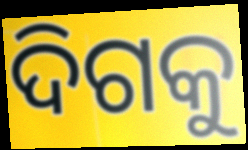
ଦିଗକୁ